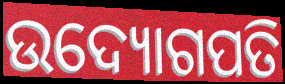
ଉଦ୍ୟୋଗପତି